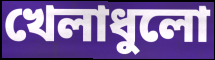
খেলাধুলো